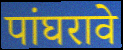
पांघरावे